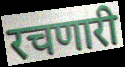
रचणारी